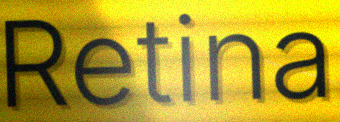
Retina